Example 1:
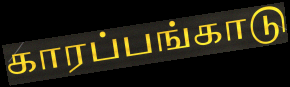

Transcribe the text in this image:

காரப்பங்காடு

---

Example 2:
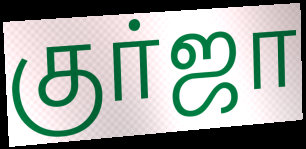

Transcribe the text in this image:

குர்ஜா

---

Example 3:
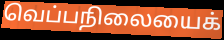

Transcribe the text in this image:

வெப்பநிலையைக்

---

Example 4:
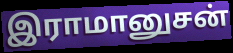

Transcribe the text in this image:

இராமானுசன்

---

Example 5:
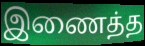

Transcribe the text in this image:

இணைத்த